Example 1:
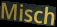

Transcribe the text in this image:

Misch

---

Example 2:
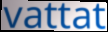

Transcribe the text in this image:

vattat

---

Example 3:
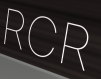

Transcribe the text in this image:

RCR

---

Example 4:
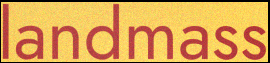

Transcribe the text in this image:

landmass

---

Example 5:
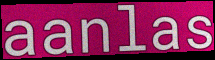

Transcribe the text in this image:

aanlas